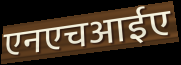
एनएचआईए